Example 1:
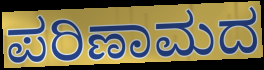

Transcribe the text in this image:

ಪರಿಣಾಮದ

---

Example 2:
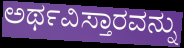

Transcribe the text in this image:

ಅರ್ಥವಿಸ್ತಾರವನ್ನು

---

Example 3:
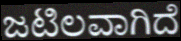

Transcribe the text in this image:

ಜಟಿಲವಾಗಿದೆ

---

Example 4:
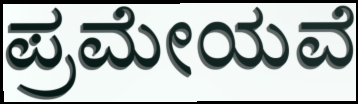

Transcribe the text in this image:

ಪ್ರಮೇಯವೆ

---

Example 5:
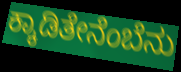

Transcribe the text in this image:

ಕ್ಕಾಡಿತೇನೆಂಬೆನು